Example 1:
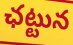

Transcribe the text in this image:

ఛట్టున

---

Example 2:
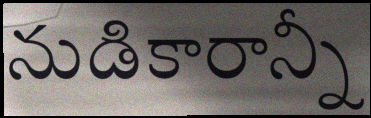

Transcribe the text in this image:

నుడికారాన్నీ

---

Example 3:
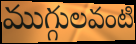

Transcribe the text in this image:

ముగ్గులవంటి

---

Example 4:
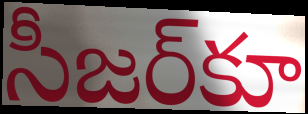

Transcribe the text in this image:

సీజర్‌కూ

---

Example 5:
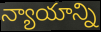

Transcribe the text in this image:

న్యాయాన్ని